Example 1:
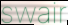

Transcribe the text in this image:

swair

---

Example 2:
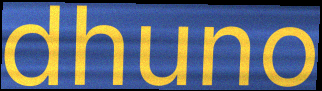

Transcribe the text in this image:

dhuno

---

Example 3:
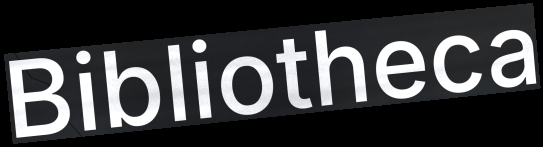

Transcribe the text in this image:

Bibliotheca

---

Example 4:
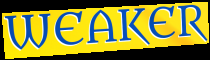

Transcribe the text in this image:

WEAKER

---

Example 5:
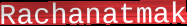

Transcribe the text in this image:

Rachanatmak